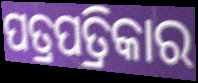
ପତ୍ରପତ୍ରିକାର